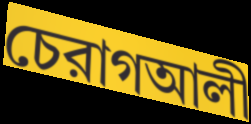
চেরাগআলী